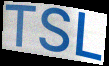
TSL